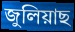
জুলিয়াছ